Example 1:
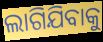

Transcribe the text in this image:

ଲାଗିଯିବାକୁ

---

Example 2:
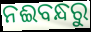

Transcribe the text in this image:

ନଈବନ୍ଧରୁ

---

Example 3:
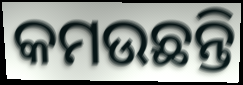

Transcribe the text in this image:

କମଉଛନ୍ତି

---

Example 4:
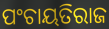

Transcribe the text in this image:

ପଂଚାୟତିରାଜ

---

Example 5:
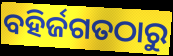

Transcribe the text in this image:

ବହିର୍ଜଗତଠାରୁ